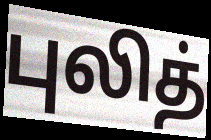
புலித்